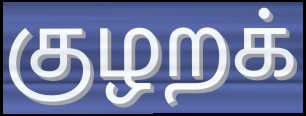
குழறக்